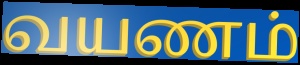
வயணம்